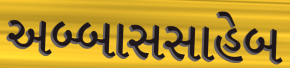
અબ્બાસસાહેબ